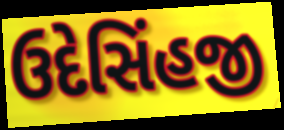
ઉદેસિંહજી